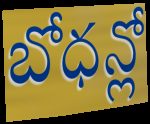
బోధన్లో